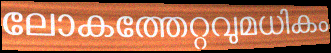
ലോകത്തേറ്റവുമധികം